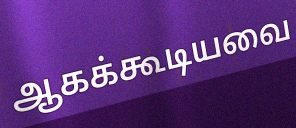
ஆகக்கூடியவை